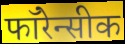
फॉरेन्सीक